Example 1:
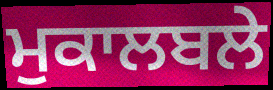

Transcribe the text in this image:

ਮੁਕਾਲਬਲੇ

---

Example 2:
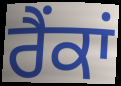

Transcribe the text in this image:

ਰੈਂਕਾਂ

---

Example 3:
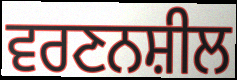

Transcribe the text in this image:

ਵਰਣਨਸ਼ੀਲ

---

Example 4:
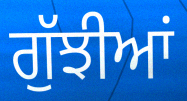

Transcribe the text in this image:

ਗੁੱਝੀਆਂ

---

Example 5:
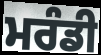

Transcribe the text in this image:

ਮਰੰਡੀ